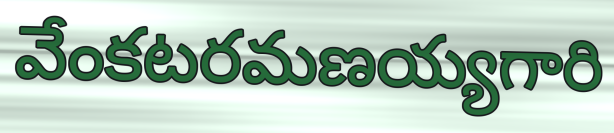
వేంకటరమణయ్యగారి